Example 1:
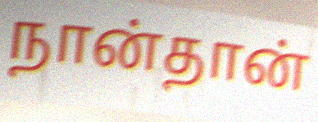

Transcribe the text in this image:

நான்தான்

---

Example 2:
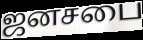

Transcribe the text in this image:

ஜனசபை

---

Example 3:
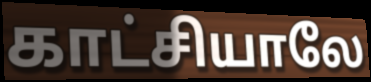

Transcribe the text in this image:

காட்சியாலே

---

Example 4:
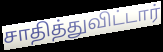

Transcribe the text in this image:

சாதித்துவிட்டார்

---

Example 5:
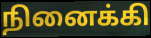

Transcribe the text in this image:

நினைக்கி